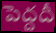
పెద్దదీ